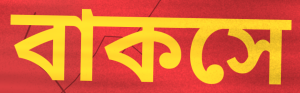
বাকসে